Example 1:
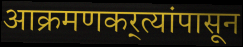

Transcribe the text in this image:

आक्रमणकर्त्यांपासून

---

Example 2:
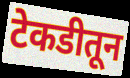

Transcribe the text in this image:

टेकडीतून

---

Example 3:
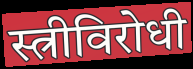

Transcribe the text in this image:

स्त्रीविरोधी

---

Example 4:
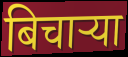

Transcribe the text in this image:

बिचाऱ्या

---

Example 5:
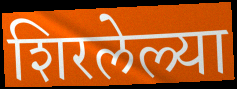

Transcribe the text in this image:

शिरलेल्या